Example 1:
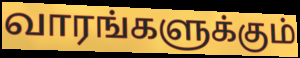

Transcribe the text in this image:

வாரங்களுக்கும்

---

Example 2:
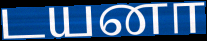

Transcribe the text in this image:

டயனா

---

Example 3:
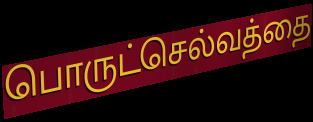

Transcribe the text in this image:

பொருட்செல்வத்தை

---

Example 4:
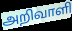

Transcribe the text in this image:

அறிவாளி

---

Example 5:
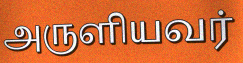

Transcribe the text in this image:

அருளியவர்